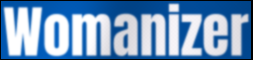
Womanizer